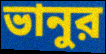
ভানুর